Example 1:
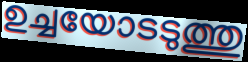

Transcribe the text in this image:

ഉച്ചയോടടുത്തു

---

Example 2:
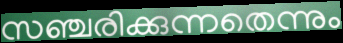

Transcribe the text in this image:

സഞ്ചരിക്കുന്നതെന്നും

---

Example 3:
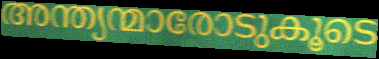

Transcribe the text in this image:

അന്ത്യന്മാരോടുകൂടെ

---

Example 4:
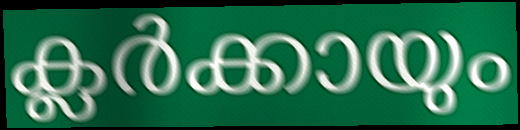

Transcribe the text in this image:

ക്ലർക്കായും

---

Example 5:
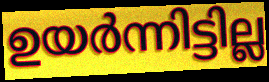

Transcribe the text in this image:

ഉയർന്നിട്ടില്ല